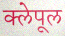
क्लेपूल